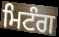
ਮਿਟੰਗ